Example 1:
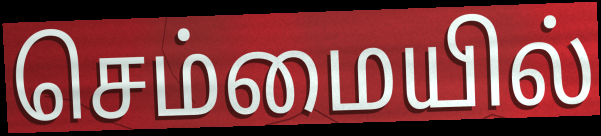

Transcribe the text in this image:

செம்மையில்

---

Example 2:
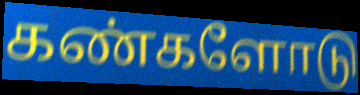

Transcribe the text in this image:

கண்களோடு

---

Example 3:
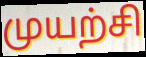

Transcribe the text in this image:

முயற்சி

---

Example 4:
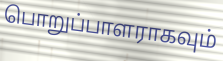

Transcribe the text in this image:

பொறுப்பாளராகவும்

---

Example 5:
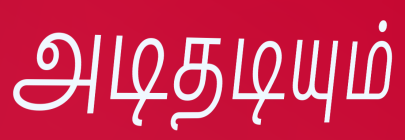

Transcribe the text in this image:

அடிதடியும்